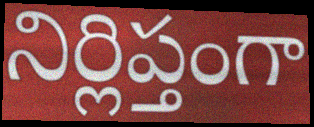
నిర్లిప్తంగా